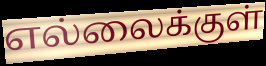
எல்லைக்குள்